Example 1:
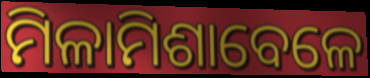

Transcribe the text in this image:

ମିଳାମିଶାବେଳେ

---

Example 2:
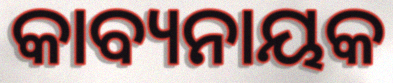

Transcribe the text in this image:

କାବ୍ୟନାୟକ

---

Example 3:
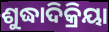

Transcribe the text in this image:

ଶୁଦ୍ଧାଦିକ୍ରିୟା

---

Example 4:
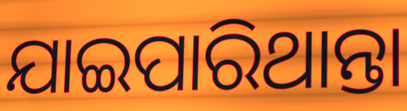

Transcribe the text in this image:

ଯାଇପାରିଥାନ୍ତା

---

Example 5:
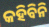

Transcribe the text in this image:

କହିବିନି